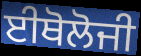
ਈਥੋਲੋਜੀ